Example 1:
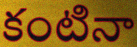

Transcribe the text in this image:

కంటినా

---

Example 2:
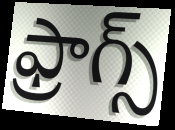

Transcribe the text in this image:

ఫ్రాగ్స్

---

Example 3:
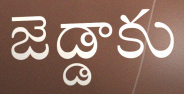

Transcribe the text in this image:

జెడ్డాకు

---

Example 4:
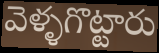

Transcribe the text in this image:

వెళ్ళగొట్టారు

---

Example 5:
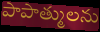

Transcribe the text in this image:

పాపాత్ములను